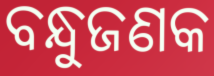
ବନ୍ଧୁଜଣକ